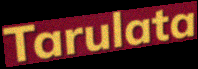
Tarulata